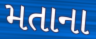
મતાના